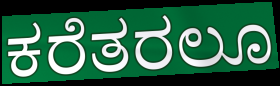
ಕರೆತರಲೂ